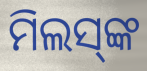
ମିଲସ୍‍ଙ୍କ